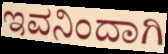
ಇವನಿಂದಾಗಿ